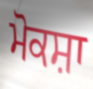
ਮੋਕਸ਼ਾ